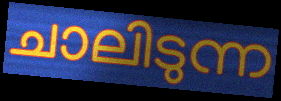
ചാലിടുന്ന